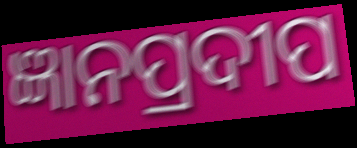
ଜ୍ଞାନପ୍ରଦୀପ